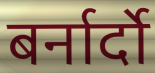
बर्नार्दो